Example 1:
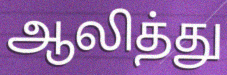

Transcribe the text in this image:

ஆலித்து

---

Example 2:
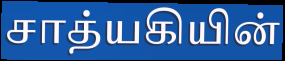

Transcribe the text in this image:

சாத்யகியின்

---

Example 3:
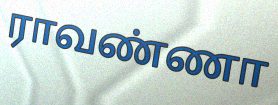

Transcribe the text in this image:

ராவண்ணா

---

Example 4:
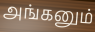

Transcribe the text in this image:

அங்கனும்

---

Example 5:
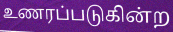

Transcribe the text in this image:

உணரப்படுகின்ற